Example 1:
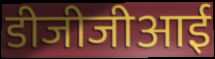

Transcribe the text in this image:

डीजीजीआई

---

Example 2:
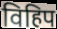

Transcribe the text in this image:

विहिप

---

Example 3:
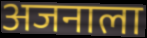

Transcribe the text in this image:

अजनाला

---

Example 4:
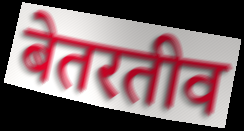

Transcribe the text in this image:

बेतरतीव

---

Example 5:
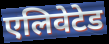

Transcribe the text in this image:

एलिवेटेड